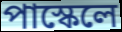
পাস্কেলে